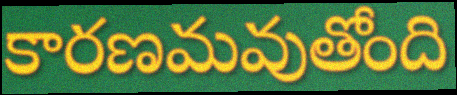
కారణమవుతోంది